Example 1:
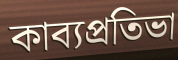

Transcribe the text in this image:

কাব্যপ্রতিভা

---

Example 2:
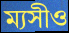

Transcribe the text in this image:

ম্যসীও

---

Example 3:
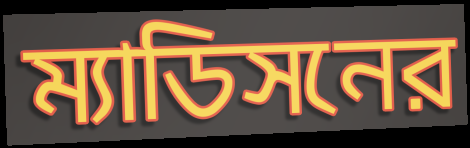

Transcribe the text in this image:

ম্যাডিসনের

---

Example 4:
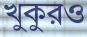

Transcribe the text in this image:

খুকুরও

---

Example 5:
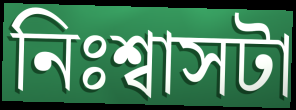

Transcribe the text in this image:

নিঃশ্বাসটা